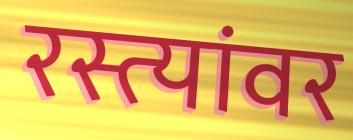
रस्त्यांवर